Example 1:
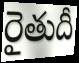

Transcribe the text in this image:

రైతుదీ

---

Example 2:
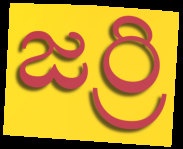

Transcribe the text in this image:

జర్రి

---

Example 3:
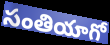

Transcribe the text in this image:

సంతియాగో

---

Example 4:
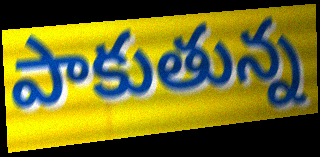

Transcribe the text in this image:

పాకుతున్న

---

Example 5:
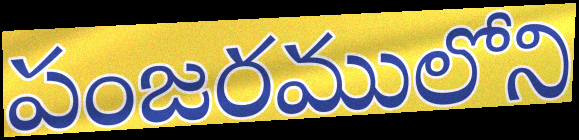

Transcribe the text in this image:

పంజరములోని